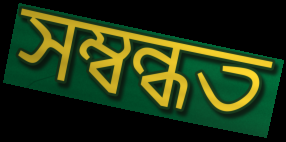
সম্বন্ধত